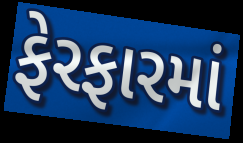
ફેરફારમાં